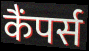
कैंपर्स